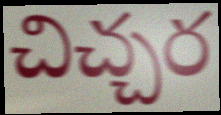
చిచ్చర